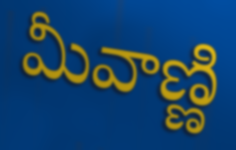
మీవాణ్ణి